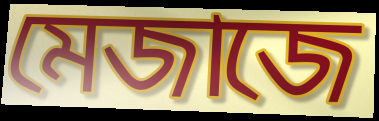
মেজাজে